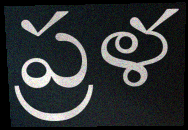
ప్రళ